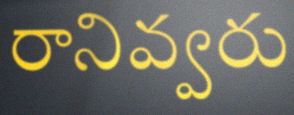
రానివ్వరు